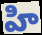
హి